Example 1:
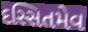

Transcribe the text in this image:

દસ્સિતમેવ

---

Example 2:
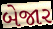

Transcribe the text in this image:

બેજાર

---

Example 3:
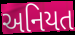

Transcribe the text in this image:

અનિયત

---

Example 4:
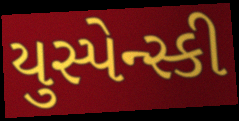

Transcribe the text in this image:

યુસ્પેન્સ્કી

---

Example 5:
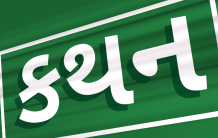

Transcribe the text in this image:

કથન